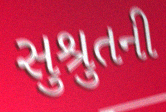
સુશ્રુતની